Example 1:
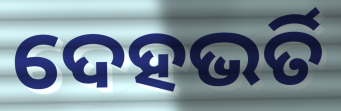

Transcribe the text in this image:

ଦେହଭର୍ତି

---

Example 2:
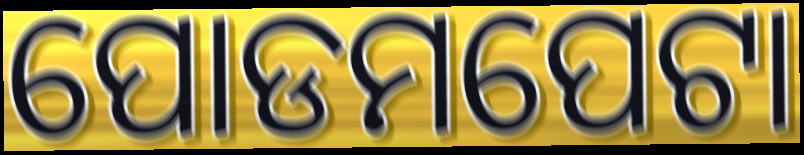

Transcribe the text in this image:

ପୋଡମପେଟା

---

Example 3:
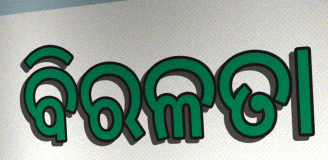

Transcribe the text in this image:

ବିରଳତା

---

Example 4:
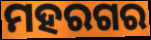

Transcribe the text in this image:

ମହରଗର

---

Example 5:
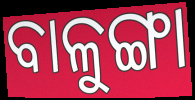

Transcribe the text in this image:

ବାଳୁଙ୍ଗା